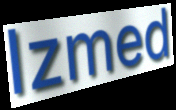
Izmed